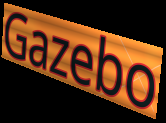
Gazebo